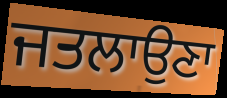
ਜਤਲਾਉਣਾ